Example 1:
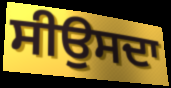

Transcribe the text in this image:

ਸੀਉਸਦਾ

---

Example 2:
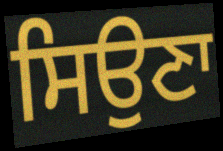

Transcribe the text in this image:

ਸਿਉਣਾ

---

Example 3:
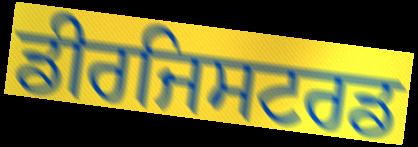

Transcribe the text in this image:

ਡੀਰਜਿਸਟਰਡ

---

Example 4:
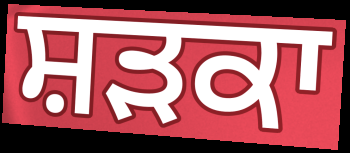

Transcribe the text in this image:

ਸ਼ੜਕਾ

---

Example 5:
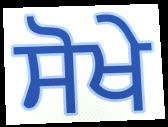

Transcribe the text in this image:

ਸੋਖੇ